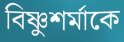
বিষ্ণুশর্মাকে